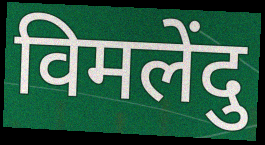
विमलेंदु